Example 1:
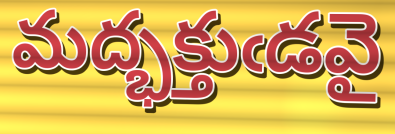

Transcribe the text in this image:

మద్భక్తుఁడవై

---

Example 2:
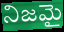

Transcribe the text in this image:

నిజమై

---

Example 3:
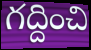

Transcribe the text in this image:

గద్దించి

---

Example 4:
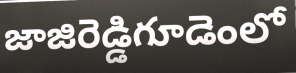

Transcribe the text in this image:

జాజిరెడ్డిగూడెంలో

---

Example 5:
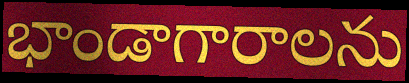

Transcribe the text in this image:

భాండాగారాలను